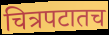
चित्रपटातच